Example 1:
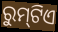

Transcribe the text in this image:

ରୁମ୍‌ଟିଏ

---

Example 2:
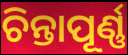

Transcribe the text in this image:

ଚିନ୍ତାପୂର୍ଣ୍ଣ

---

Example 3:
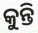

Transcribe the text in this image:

କୁନ୍ତି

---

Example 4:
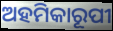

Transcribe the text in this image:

ଅହମିକାରୂପୀ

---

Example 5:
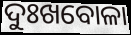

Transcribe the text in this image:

ଦୁଃଖବୋଳା